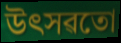
উৎসৱতো